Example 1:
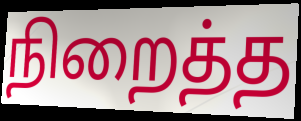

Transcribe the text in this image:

நிறைத்த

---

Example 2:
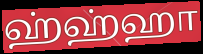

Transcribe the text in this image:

ஹ்ஹ்ஹா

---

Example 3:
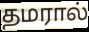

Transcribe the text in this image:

தமரால்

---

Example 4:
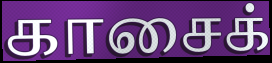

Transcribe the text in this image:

காசைக்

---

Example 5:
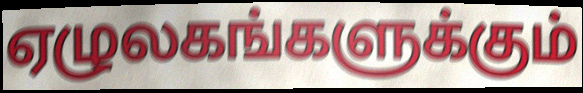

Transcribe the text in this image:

ஏழுலகங்களுக்கும்